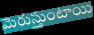
మెరుస్తుంటాయి